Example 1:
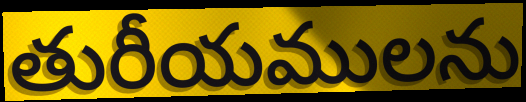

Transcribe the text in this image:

తురీయములను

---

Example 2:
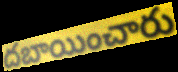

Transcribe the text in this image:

దబాయించారు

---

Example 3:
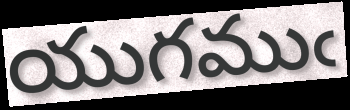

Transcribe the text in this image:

యుగముఁ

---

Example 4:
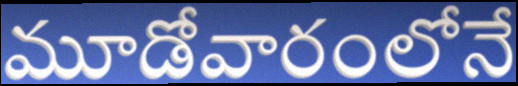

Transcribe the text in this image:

మూడోవారంలోనే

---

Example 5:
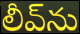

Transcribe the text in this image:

లీవ్‌ను